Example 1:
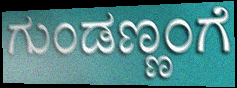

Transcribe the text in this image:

ಗುಂಡಣ್ಣಂಗೆ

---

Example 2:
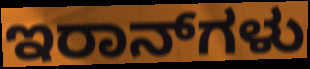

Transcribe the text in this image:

ಇರಾನ್‌ಗಳು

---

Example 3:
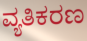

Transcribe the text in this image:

ವ್ಯತಿಕರಣ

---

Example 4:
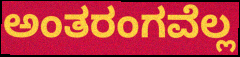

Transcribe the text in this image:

ಅಂತರಂಗವೆಲ್ಲ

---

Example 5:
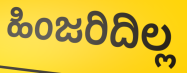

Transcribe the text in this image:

ಹಿಂಜರಿದಿಲ್ಲ